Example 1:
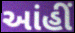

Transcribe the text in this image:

આંહીં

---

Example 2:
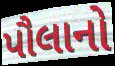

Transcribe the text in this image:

પૌલાનો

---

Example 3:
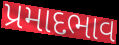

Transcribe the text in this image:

પ્રમાદભાવ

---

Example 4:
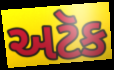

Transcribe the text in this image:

અટૅક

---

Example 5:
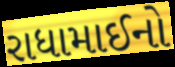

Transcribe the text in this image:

રાધામાઈનો